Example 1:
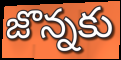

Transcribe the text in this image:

జొన్నకు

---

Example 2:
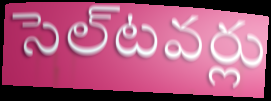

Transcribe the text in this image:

సెల్‌టవర్లు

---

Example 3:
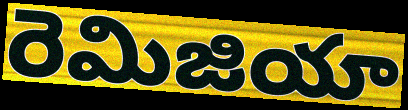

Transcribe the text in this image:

రెమిజియా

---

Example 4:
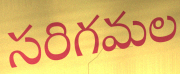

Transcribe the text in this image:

సరిగమల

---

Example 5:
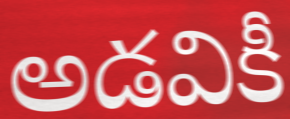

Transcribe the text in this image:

అడవికీ